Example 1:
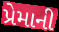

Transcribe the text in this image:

પ્રેમાની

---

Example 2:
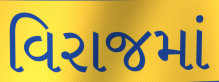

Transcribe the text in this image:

વિરાજમાં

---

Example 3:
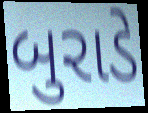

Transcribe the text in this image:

બુરાડે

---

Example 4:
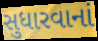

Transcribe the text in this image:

સુધારવાનાં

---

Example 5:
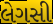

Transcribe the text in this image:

લેગસી